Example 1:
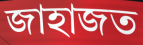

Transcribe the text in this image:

জাহাজত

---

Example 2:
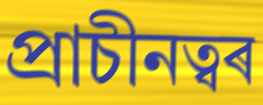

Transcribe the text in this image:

প্ৰাচীনত্বৰ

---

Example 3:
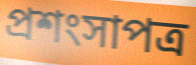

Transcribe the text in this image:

প্ৰশংসাপত্ৰ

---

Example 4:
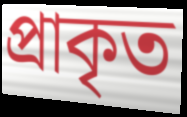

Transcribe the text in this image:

প্ৰাকৃত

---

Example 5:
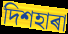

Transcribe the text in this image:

দিশহাৰা